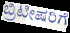
ಬ್ರಿಟೀಷರಿಗೆ